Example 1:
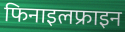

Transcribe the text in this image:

फिनाइलफ्राइन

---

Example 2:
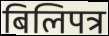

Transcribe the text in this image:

बिलिपत्र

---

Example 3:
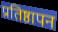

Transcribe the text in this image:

प्रतिष्ठापन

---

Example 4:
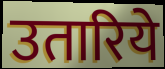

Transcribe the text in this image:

उतारिये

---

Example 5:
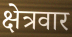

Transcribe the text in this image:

क्षेत्रवार